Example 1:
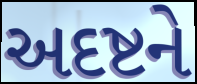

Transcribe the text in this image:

અદષ્ટને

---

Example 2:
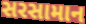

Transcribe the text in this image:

સરસામાન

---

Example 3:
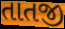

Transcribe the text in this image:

તાતજી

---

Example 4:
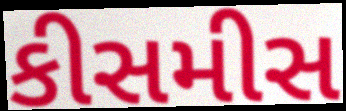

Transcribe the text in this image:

કીસમીસ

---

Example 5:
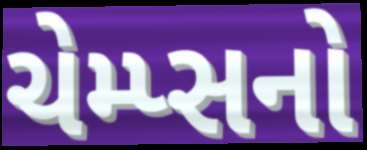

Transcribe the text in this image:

ચેમ્પ્સનો